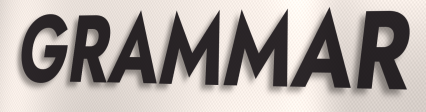
GRAMMAR